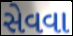
સેવવા